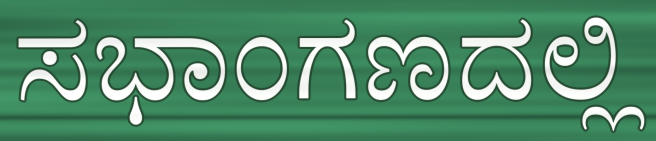
ಸಭಾಂಗಣದಲ್ಲಿ